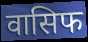
वासिफ